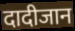
दादीजान